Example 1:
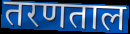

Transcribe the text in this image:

तरणताल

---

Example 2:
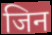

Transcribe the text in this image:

जिन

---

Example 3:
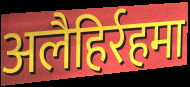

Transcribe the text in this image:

अलैहिर्रहमा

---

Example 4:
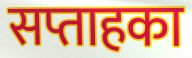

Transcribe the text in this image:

सप्ताहका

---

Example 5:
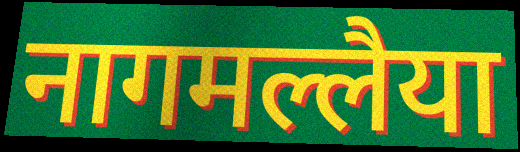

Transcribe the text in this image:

नागमल्लैया